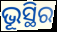
ଭୂସ୍ଥିର